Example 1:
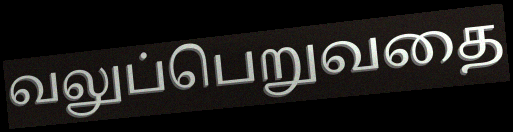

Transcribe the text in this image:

வலுப்பெறுவதை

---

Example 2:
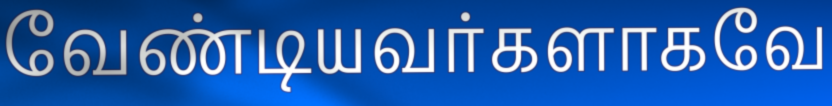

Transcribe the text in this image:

வேண்டியவர்களாகவே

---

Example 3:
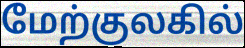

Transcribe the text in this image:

மேற்குலகில்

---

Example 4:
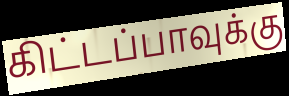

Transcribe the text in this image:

கிட்டப்பாவுக்கு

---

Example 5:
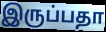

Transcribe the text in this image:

இருப்பதா